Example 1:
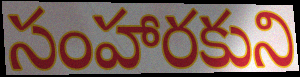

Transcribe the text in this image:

సంహారకుని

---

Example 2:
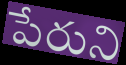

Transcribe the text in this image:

పేరుని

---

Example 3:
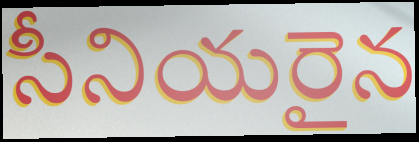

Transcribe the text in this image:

సీనియరైన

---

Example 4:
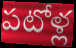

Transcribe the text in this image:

పటోళ్ల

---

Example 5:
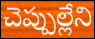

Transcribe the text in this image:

చెప్పుల్లేని